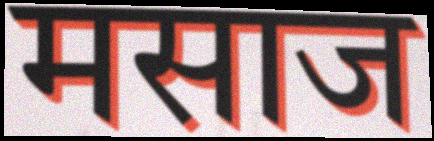
मसाज